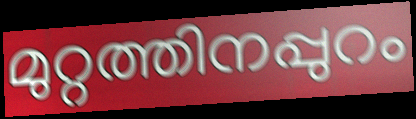
മുറ്റത്തിനപ്പുറം